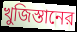
খুজিস্তানের